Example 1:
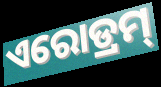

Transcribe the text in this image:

ଏରୋଡ୍ରମ୍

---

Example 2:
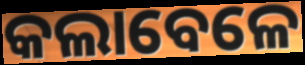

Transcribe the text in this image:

କଲାବେଳେ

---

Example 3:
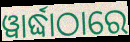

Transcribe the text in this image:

ୱାର୍ଦ୍ଧାଠାରେ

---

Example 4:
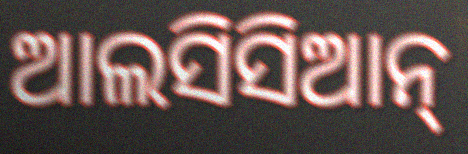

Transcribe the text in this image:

ଆଲସିସିଆନ୍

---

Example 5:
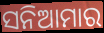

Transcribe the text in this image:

ସନିଆମାର